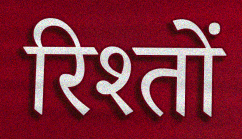
रिश्तों